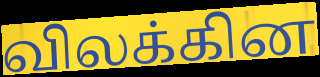
விலக்கின